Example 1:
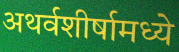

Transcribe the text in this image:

अथर्वशीर्षामध्ये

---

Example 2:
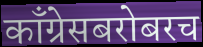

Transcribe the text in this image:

काँग्रेसबरोबरच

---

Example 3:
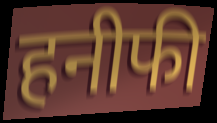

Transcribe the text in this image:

हनीफी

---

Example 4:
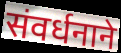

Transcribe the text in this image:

संवर्धनाने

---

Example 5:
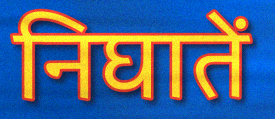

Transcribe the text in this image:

निघातें